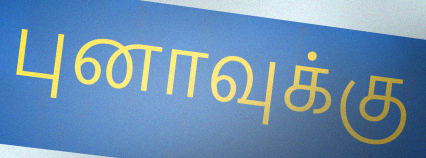
புனாவுக்கு